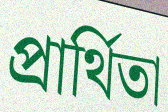
প্রার্থিতা